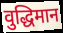
वुद्धिमान